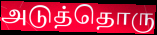
அடுத்தொரு